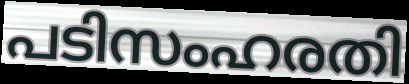
പടിസംഹരതി